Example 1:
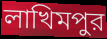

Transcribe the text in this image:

লাখিমপুর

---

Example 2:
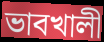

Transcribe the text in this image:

ভাবখালী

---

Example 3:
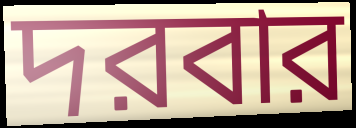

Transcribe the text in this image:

দরবার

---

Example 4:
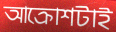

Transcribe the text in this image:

আক্রোশটাই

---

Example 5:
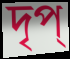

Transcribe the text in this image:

দৃপ্